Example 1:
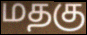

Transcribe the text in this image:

மதகு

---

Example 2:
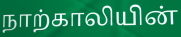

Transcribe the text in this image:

நாற்காலியின்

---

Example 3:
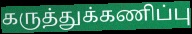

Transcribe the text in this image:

கருத்துக்கணிப்பு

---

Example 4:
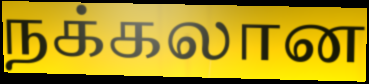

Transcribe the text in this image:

நக்கலான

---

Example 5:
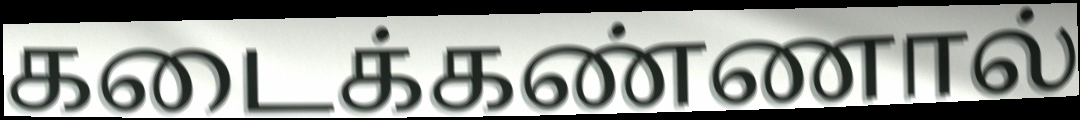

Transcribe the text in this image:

கடைக்கண்ணால்